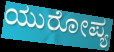
ಯುರೋಪ್ಯ